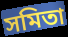
সমিতা